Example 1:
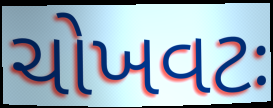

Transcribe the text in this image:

ચોખવટઃ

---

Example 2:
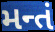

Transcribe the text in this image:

મન્તં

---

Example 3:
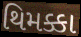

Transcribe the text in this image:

થિમક્કા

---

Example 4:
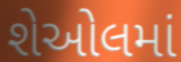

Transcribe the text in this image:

શેઓલમાં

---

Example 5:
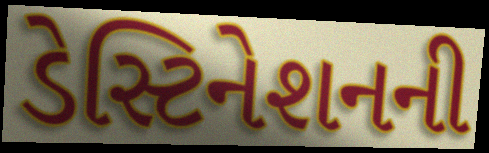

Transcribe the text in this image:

ડેસ્ટિનેશનની